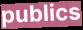
publics